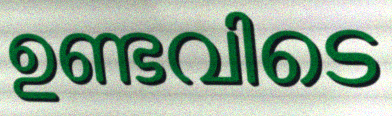
ഉണ്ടവിടെ